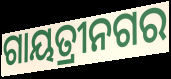
ଗାୟତ୍ରୀନଗର